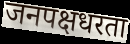
जनपक्षधरता